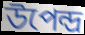
উপেন্দ্র